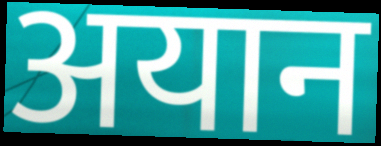
अयान